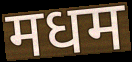
मधम